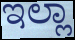
ಇಲ್ಲಾ